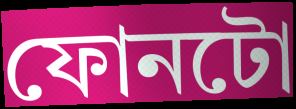
ফোনটো